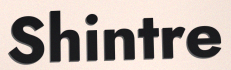
Shintre